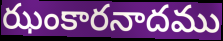
ఝంకారనాదము